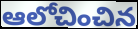
ఆలోచించిన